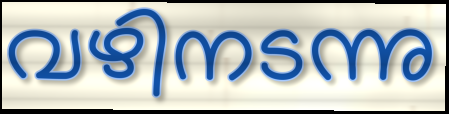
വഴിനടന്നു